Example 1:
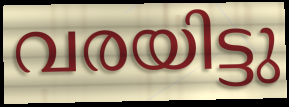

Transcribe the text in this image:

വരയിട്ടു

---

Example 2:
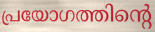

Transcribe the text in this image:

പ്രയോഗത്തിന്റെ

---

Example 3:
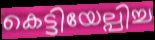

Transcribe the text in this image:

കെട്ടിയേല്പിച്ച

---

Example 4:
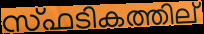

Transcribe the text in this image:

സ്ഫടികത്തില്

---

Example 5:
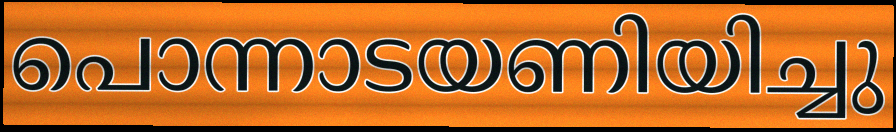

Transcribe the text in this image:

പൊന്നാടയണിയിച്ചു